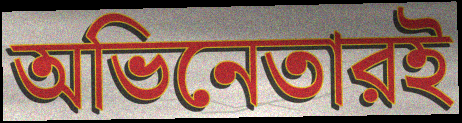
অভিনেতারই